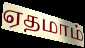
ஏதமாம்